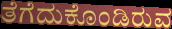
ತೆಗೆದುಕೊಂಡಿರುವ